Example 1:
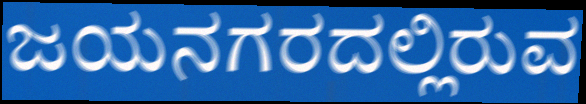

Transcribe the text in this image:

ಜಯನಗರದಲ್ಲಿರುವ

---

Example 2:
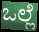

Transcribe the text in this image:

ಒಲ್ಲೆ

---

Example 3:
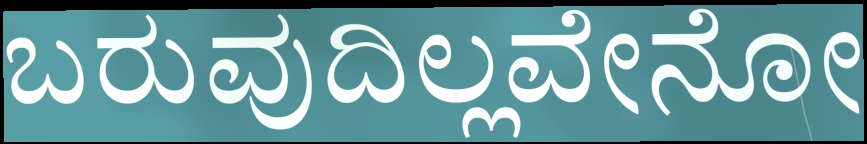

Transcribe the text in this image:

ಬರುವುದಿಲ್ಲವೇನೋ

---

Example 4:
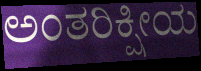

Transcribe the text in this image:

ಅಂತರಿಕ್ಷೀಯ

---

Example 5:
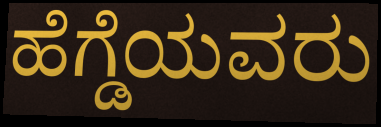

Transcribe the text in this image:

ಹೆಗ್ಡೆಯವರು